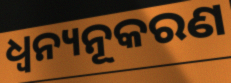
ଧ୍ୱନ୍ୟନୂକରଣ